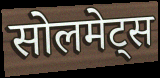
सोलमेट्स